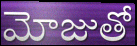
మోజుతో